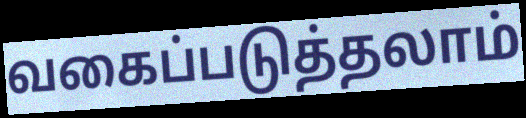
வகைப்படுத்தலாம்